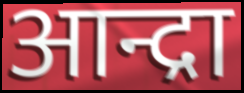
आन्द्रा